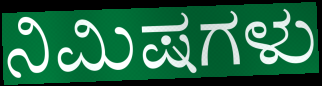
ನಿಮಿಷಗಳು